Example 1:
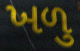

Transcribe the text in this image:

ખળુ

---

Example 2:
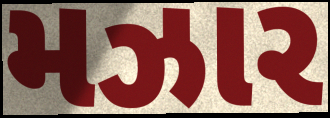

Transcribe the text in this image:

મઝાર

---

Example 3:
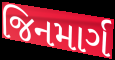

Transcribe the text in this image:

જિનમાર્ગ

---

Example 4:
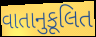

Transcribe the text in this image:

વાતાનુકૂલિત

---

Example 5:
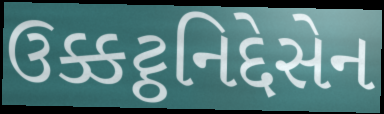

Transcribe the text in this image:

ઉક્કટ્ઠનિદ્દેસેન